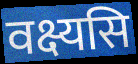
वक्ष्यसि